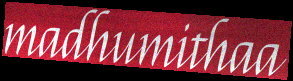
madhumithaa